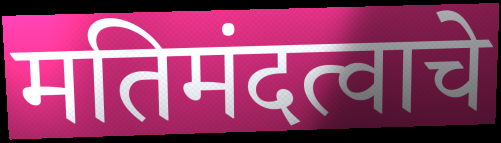
मतिमंदत्वाचे